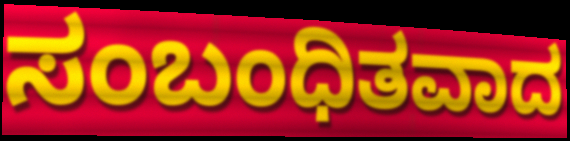
ಸಂಬಂಧಿತವಾದ